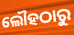
ଲୌହଠାରୁ